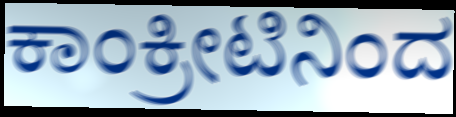
ಕಾಂಕ್ರೀಟಿನಿಂದ